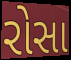
રોસા